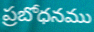
ప్రబోధనము